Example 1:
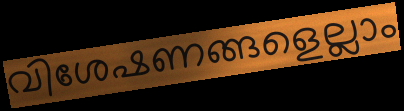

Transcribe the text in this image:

വിശേഷണങ്ങളെല്ലാം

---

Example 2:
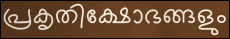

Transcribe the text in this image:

പ്രകൃതിക്ഷോഭങ്ങളും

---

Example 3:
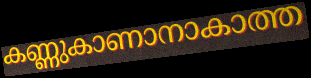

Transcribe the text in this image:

കണ്ണുകാണാനാകാത്ത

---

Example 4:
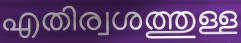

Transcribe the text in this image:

എതിര്വശത്തുള്ള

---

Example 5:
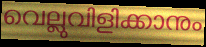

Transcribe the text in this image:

വെല്ലുവിളിക്കാനും